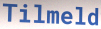
Tilmeld